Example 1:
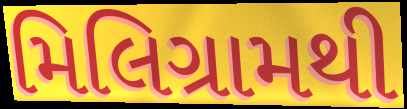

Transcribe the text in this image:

મિલિગ્રામથી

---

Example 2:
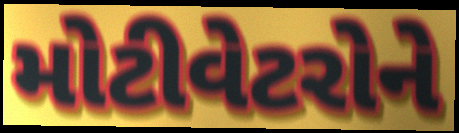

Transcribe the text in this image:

મોટીવેટરોને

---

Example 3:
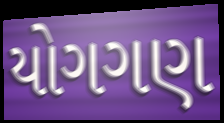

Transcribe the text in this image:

યોગગણ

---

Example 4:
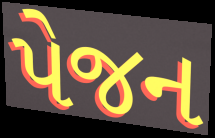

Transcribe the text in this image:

પેજન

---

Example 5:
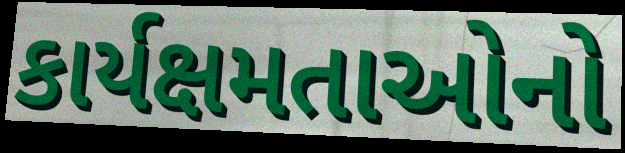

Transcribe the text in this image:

કાર્યક્ષમતાઓનો